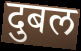
दुबल